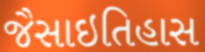
જૈસાઇતિહાસ